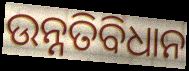
ଉନ୍ନତିବିଧାନ